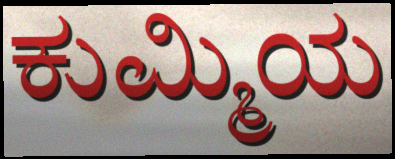
ಕುಮ್ಮಿಯ